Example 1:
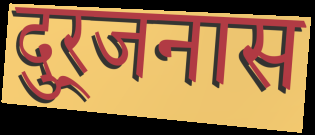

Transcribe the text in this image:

दुर्जनास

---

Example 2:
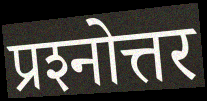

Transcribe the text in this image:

प्रश्‍नोत्तर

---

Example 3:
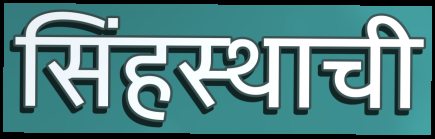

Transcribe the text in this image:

सिंहस्थाची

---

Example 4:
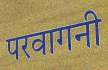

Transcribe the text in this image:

परवागनी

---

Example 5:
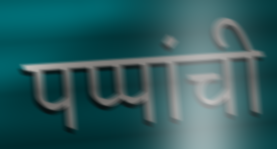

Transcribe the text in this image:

पप्पांची